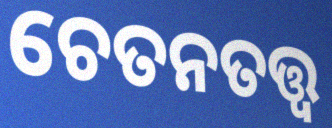
ଚେତନତତ୍ତ୍ୱ